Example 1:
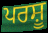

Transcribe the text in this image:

ਪਰਸ਼ੂ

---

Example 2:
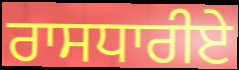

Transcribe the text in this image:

ਰਾਸਧਾਰੀਏ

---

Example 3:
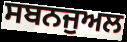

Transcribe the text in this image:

ਸਬਨਜੁਅਲ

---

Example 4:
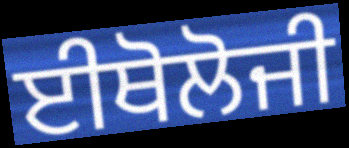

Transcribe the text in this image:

ਈਥੋਲੋਜੀ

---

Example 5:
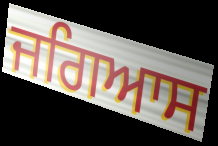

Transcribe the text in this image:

ਜਗਿਆਸ